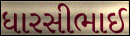
ધારસીભાઈ